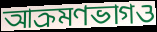
আক্রমণভাগও